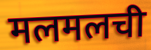
मलमलची